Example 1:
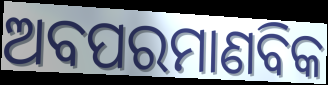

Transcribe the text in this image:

ଅବପରମାଣବିକ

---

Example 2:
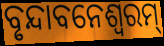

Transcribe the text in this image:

ବୃନ୍ଦାବନେଶ୍ୱରମ୍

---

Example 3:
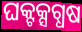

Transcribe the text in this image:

ଘକ୍ଟକ୍ସଗ୍ଧଷ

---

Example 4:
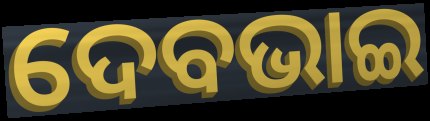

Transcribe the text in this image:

ଦେବଭାଇ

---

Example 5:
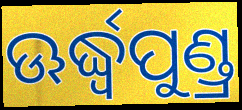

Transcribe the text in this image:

ଊର୍ଦ୍ଧ୍ୱପୁଣ୍ଡ୍ର